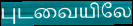
புடவையிலே